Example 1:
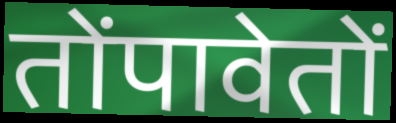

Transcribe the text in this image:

तोंपावेतों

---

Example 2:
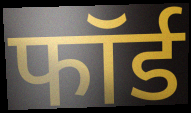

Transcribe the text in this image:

फॉर्ड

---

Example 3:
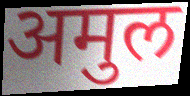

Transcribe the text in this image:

अमुल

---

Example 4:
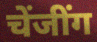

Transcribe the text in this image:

चेंजींग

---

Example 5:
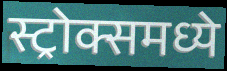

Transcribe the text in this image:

स्ट्रोक्समध्ये